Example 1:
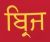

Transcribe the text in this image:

ਬ੍ਰਿਜ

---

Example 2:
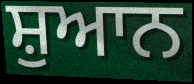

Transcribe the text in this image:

ਸ਼ੁਆਨ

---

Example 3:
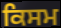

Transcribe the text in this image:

ਕਿਸਮ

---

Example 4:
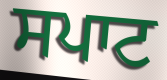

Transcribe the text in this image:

ਸਪਾਟ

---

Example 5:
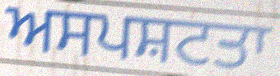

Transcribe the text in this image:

ਅਸਪਸ਼ਟਤਾ